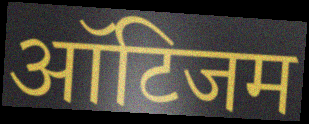
ऑटिजम